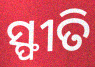
ସ୍ଫୀତି